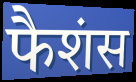
फैशंस